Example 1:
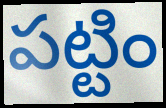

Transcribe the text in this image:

పట్టిం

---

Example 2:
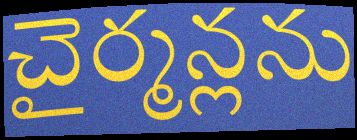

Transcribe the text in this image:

చైర్మన్లను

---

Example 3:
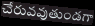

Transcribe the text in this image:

చేరువవుతుండగా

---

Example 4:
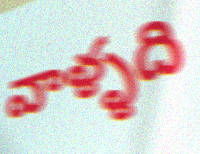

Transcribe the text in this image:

వాళ్ళది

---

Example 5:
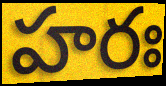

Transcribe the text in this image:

హరః